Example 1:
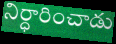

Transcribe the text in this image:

నిర్ధారించాడు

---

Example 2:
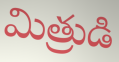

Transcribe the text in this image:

మిత్రుడి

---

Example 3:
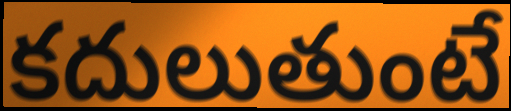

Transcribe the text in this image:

కదులుతుంటే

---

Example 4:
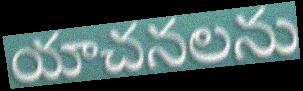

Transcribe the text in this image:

యాచనలను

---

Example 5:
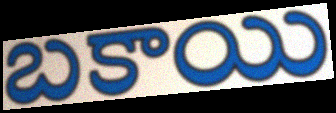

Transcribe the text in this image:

బకాయి